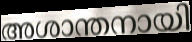
അശാന്തനായി